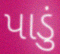
પાડું